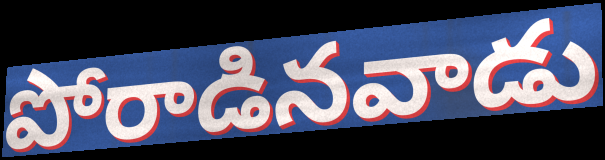
పోరాడినవాడు